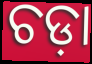
ଚଡ଼ା